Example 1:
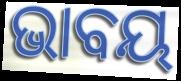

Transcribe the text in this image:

ଭାବୟ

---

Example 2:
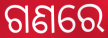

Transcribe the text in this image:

ଗଣରେ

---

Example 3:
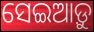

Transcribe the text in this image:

ସେଇଆଡ଼ୁ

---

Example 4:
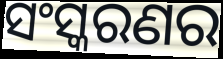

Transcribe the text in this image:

ସଂସ୍କରଣର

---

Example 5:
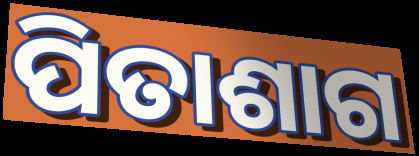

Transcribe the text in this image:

ପିତାଶାଗ